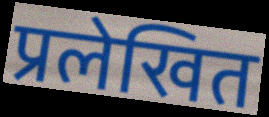
प्रलेखित